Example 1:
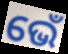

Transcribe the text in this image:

ଭେଁ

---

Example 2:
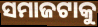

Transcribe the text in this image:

ସମାଜଟାକୁ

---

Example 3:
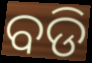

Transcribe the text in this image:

ବଡି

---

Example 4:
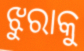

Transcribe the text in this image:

ଝୁରାକୁ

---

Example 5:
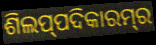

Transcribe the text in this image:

ଶିଲପ୍‍ପଦିକାରମ୍‍ର